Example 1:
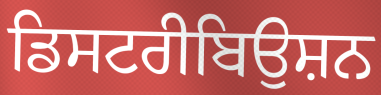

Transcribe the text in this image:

ਡਿਸਟਰੀਬਿਉਸ਼ਨ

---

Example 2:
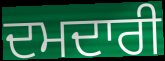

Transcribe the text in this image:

ਦਮਦਾਰੀ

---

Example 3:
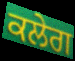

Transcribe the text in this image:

ਕਲੇਗ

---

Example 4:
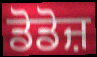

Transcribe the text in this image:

ਡੋਡੋਜ਼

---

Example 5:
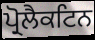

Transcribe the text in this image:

ਪ੍ਰੋਲੈਕਟਿਨ